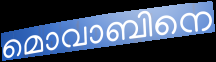
മൊവാബിനെ